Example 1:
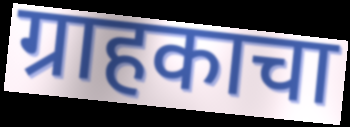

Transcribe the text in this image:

ग्राहकाचा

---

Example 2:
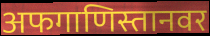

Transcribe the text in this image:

अफगाणिस्तानवर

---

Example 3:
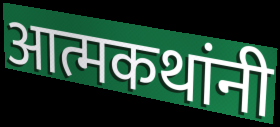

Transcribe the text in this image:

आत्मकथांनी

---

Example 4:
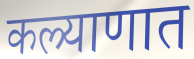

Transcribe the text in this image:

कल्याणात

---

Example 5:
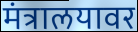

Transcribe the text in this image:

मंत्रालयावर